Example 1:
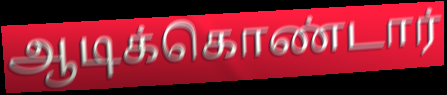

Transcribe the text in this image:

ஆடிக்கொண்டார்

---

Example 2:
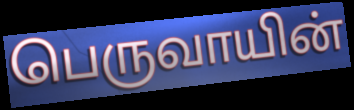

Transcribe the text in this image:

பெருவாயின்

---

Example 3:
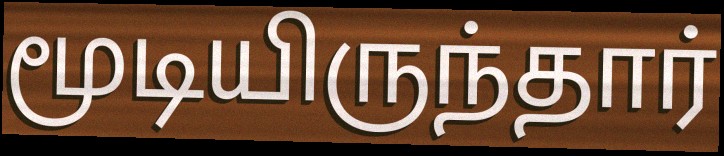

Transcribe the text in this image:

மூடியிருந்தார்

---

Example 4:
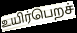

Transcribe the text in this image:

உயிர்பெறச்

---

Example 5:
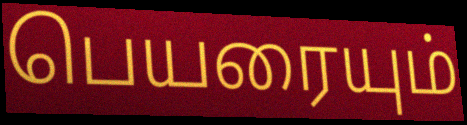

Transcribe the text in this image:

பெயரையும்